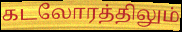
கடலோரத்திலும்